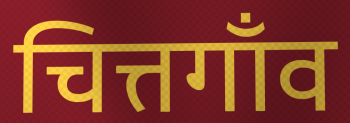
चित्तगाँव